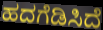
ಹದಗೆಡಿಸಿದೆ